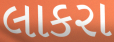
લાકરા